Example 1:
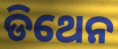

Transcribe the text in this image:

ଡିଥେନ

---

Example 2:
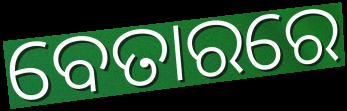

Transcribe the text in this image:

ବେତାରରେ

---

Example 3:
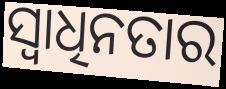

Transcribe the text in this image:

ସ୍ୱାଧିନତାର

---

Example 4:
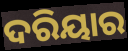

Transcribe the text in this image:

ଦରିୟାର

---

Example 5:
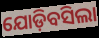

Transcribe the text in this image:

ଯୋଡ଼ିବସିଲା